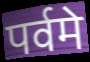
पर्वमे